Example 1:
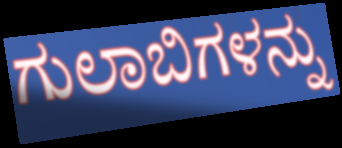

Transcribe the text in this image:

ಗುಲಾಬಿಗಳನ್ನು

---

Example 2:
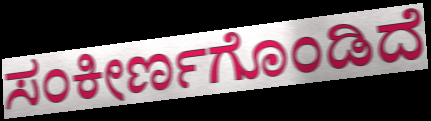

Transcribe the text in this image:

ಸಂಕೀರ್ಣಗೊಂಡಿದೆ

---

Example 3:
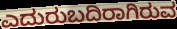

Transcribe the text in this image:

ಎದುರುಬದಿರಾಗಿರುವ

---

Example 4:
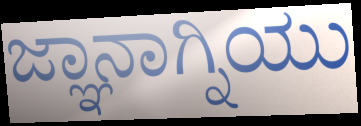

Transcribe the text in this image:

ಜ್ಞಾನಾಗ್ನಿಯು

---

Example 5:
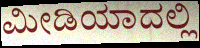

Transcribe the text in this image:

ಮೀಡಿಯಾದಲ್ಲಿ